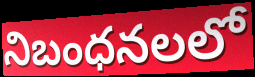
నిబంధనలలో